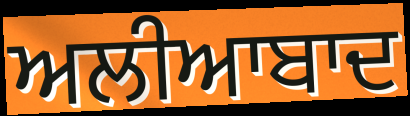
ਅਲੀਆਬਾਦ